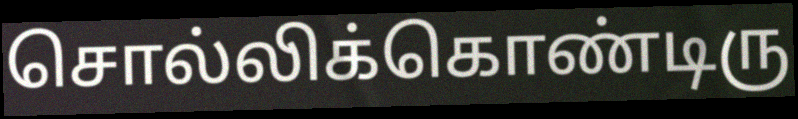
சொல்லிக்கொண்டிரு